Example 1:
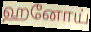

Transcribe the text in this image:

ஹனோய்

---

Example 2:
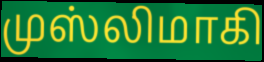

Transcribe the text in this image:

முஸ்லிமாகி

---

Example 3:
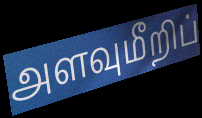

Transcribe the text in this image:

அளவுமீறிப்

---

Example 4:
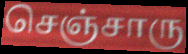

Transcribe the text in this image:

செஞ்சாரு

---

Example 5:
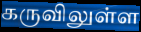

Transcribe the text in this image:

கருவிலுள்ள